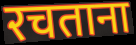
रचताना